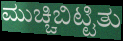
ಮುಚ್ಚಿಬಿಟ್ಟಿತು